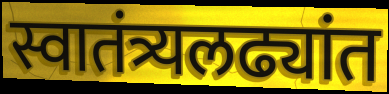
स्वातंत्र्यलढ्यांत